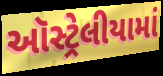
ઑસ્ટ્રેલીયામાં